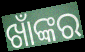
ଖାଁଙ୍କର